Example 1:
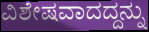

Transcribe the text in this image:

ವಿಶೇಷವಾದದ್ದನ್ನು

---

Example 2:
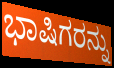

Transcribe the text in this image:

ಭಾಷಿಗರನ್ನು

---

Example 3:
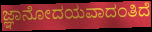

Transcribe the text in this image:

ಜ್ಞಾನೋದಯವಾದಂತಿದೆ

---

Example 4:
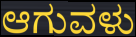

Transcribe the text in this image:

ಆಗುವಳು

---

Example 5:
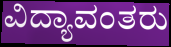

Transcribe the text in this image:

ವಿದ್ಯಾವಂತರು